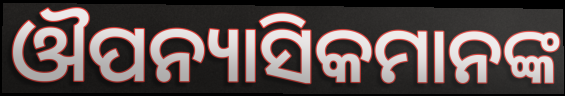
ଔପନ୍ୟାସିକମାନଙ୍କ